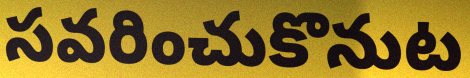
సవరించుకొనుట